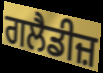
ਗਲੈਡੀਜ਼